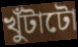
খুঁটাটো